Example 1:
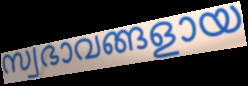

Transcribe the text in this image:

സ്വഭാവങ്ങളായ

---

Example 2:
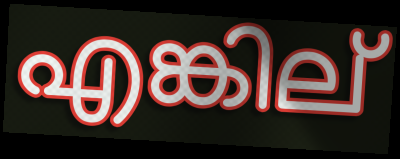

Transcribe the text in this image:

എങ്കില്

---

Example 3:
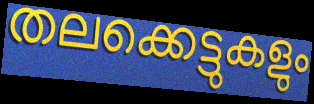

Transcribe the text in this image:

തലക്കെട്ടുകളും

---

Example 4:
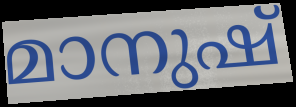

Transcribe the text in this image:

മാനുഷ്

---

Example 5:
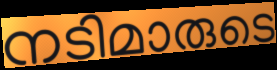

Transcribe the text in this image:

നടിമാരുടെ